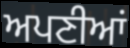
ਅਪਣੀਆਂ